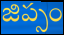
జిప్సం